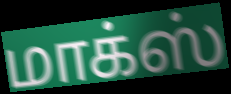
மாக்ஸ்